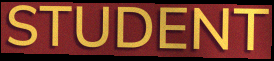
STUDENT